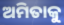
ଅମିତାକୁ